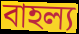
বাহল্য